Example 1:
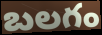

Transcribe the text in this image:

బలగం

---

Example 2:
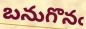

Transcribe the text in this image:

బనుగొనఁ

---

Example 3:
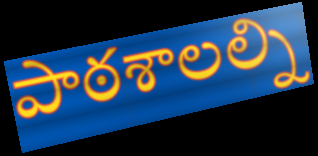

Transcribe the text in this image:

పాఠశాలల్ని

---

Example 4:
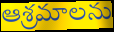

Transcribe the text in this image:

ఆశ్రమాలను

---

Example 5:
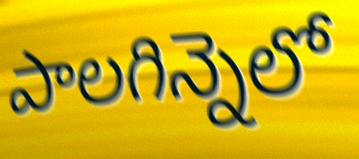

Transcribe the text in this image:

పాలగిన్నెలో